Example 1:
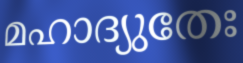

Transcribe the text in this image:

മഹാദ്യുതേഃ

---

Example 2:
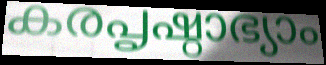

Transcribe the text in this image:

കരപൃഷ്ഠാഭ്യാം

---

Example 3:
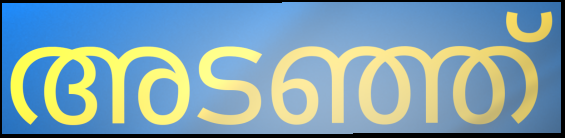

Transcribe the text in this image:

അടഞ്ഞ്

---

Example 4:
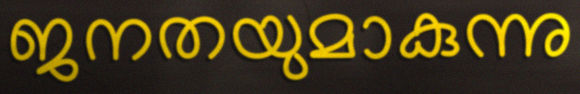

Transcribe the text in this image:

ജനതയുമാകുന്നു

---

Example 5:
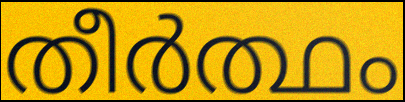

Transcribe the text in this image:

തീർത്ഥം